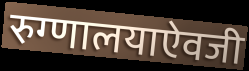
रुग्णालयाऐवजी